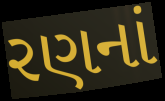
રણનાં